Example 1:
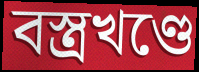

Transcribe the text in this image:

বস্ত্রখণ্ডে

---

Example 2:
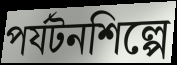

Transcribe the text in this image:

পর্যটনশিল্পে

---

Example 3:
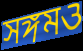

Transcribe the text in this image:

সঙ্গমও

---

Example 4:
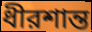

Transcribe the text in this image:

ধীরশান্ত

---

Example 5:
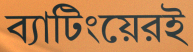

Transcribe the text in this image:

ব্যাটিংয়েরই